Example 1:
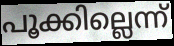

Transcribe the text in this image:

പൂക്കില്ലെന്ന്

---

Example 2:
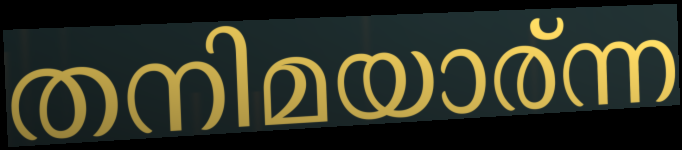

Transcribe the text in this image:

തനിമയാര്ന്ന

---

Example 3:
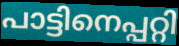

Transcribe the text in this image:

പാട്ടിനെപ്പറ്റി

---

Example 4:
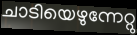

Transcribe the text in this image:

ചാടിയെഴുന്നേറ്റു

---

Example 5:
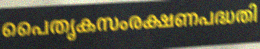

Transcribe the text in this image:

പൈതൃകസംരക്ഷണപദ്ധതി